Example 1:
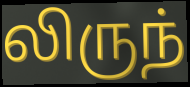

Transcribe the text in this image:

லிருந்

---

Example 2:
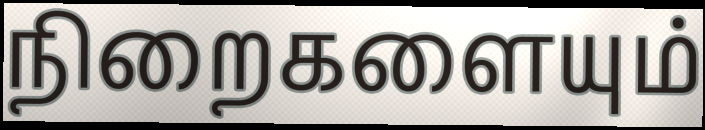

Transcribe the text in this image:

நிறைகளையும்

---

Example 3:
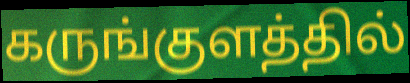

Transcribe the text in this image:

கருங்குளத்தில்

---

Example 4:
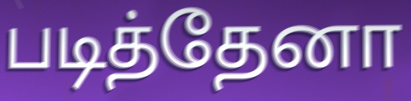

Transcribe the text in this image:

படித்தேனா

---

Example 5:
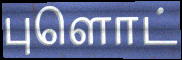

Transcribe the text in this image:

புளொட்